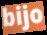
bijo